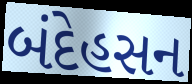
બંદેહસન